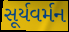
સૂર્યવર્મન